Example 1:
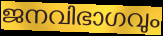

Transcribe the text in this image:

ജനവിഭാഗവും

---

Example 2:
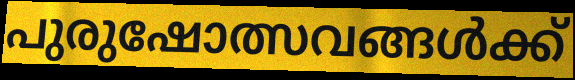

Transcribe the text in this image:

പുരുഷോത്സവങ്ങൾക്ക്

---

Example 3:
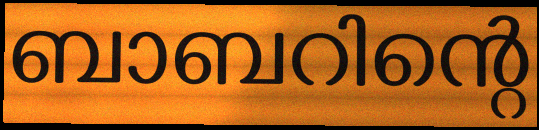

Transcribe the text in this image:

ബാബറിന്റെ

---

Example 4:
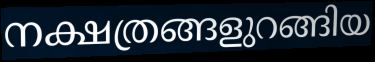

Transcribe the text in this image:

നക്ഷത്രങ്ങളുറങ്ങിയ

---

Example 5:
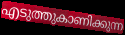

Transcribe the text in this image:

എടുത്തുകാണിക്കുന്ന